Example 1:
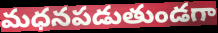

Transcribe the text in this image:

మధనపడుతుండగా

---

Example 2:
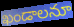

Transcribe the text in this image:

ఖండాలనూ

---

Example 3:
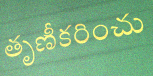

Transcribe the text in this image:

తృణీకరించు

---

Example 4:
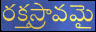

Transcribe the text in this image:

రక్తస్రావమై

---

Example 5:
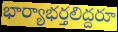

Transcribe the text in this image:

భార్యాభర్తలిద్దరూ